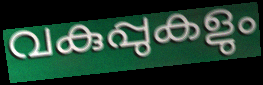
വകുപ്പുകളും